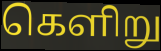
கெளிறு